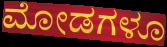
ಮೋಡಗಳೂ